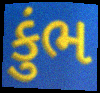
કુંભ